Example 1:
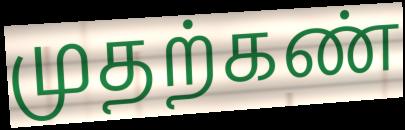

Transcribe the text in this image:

முதற்கண்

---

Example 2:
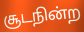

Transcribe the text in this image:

சூடநின்ற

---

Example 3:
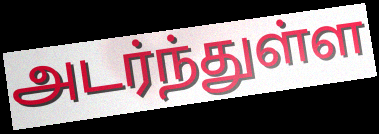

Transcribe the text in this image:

அடர்ந்துள்ள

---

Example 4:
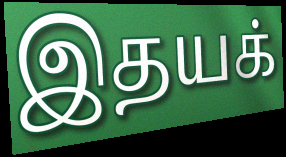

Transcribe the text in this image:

இதயக்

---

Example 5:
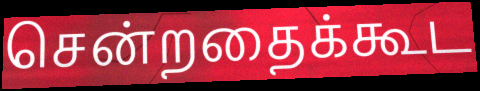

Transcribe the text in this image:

சென்றதைக்கூட